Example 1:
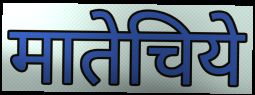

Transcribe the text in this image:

मातेचिये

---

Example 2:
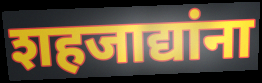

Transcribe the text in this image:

शहजाद्यांना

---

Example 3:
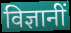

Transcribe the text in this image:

विज्ञानीं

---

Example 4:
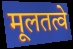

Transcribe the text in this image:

मूलतत्वे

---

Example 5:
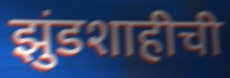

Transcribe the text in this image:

झुंडशाहीची